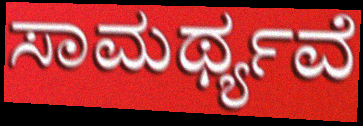
ಸಾಮರ್ಥ್ಯವೆ